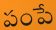
పంపే